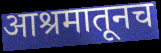
आश्रमातूनच